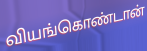
வியங்கொண்டான்